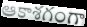
ఆకాశగంగా